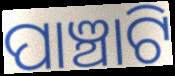
ପାଞ୍ଚାଟି